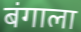
बंगाला